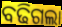
ବଢିଗଲା